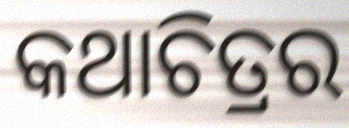
କଥାଚିତ୍ରର